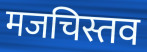
मजचिस्तव